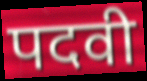
पदवी